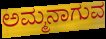
ಅಮ್ಮನಾಗುವ